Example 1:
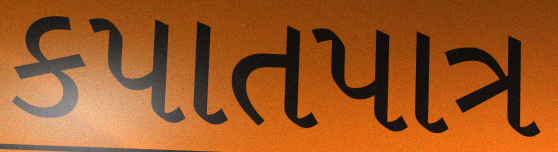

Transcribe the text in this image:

કપાતપાત્ર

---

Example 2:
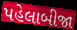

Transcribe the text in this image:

પહેલાબીજા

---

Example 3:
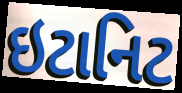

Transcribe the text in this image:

ઇટાનિટ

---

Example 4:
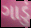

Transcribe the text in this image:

ગાડું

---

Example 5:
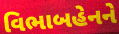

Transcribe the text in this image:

વિભાબહેનને